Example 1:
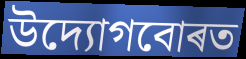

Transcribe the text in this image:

উদ্যোগবোৰত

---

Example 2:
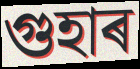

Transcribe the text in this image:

গুহাৰ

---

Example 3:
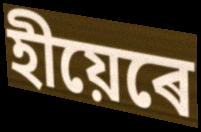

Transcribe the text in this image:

হীয়েৰে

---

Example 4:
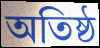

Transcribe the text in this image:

অতিষ্ঠ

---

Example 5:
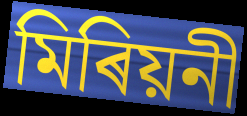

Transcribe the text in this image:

মিৰিয়নী